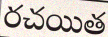
రచయిత